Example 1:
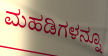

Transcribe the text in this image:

ಮಹಡಿಗಳನ್ನೂ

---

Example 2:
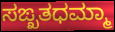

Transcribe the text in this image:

ಸಙ್ಖತಧಮ್ಮಾ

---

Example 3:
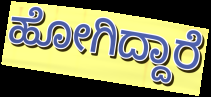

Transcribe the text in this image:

ಹೋಗಿದ್ದಾರೆ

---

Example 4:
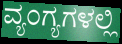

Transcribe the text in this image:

ವ್ಯಂಗ್ಯಗಳಲ್ಲಿ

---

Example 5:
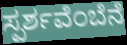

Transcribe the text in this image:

ಸ್ಪರ್ಶವೆಂಬೆನೆ